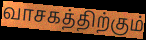
வாசகத்திற்கும்